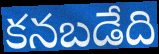
కనబడేది